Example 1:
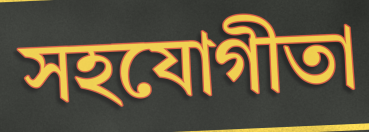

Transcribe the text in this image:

সহযোগীতা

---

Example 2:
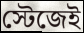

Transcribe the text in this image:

স্টেজেই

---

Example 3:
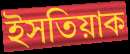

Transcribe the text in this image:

ইসতিয়াক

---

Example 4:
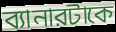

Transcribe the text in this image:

ব্যানারটাকে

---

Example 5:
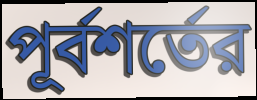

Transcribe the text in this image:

পূর্বশর্তের